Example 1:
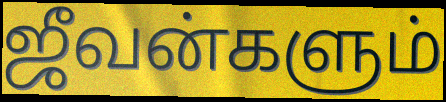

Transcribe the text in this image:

ஜீவன்களும்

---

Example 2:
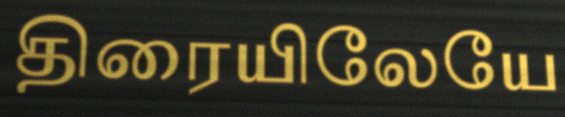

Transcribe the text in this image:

திரையிலேயே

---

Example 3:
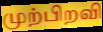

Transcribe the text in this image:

முற்பிறவி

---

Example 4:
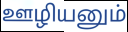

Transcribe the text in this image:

ஊழியனும்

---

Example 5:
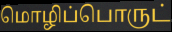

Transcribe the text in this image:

மொழிப்பொருட்